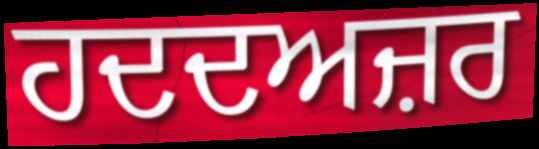
ਹਦਦਅਜ਼ਰ